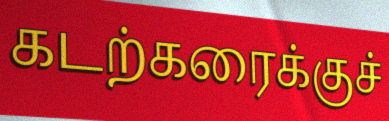
கடற்கரைக்குச்